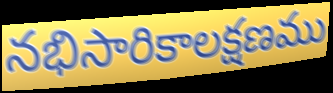
నభిసారికాలక్షణము